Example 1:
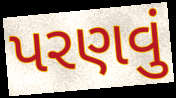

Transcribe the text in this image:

પરણવું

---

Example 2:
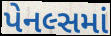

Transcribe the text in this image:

પેનલ્સમાં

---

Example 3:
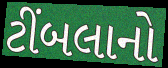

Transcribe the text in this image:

ટીંબલાનો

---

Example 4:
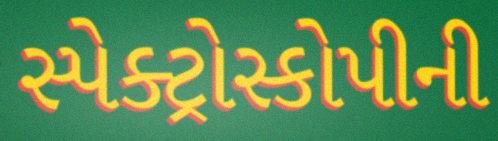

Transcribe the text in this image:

સ્પેક્ટ્રોસ્કોપીની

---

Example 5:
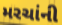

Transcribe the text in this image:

મરચાંની